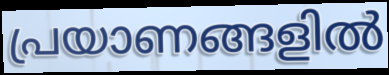
പ്രയാണങ്ങളിൽ